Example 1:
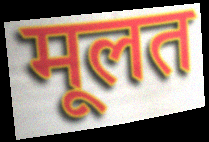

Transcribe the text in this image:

मूलत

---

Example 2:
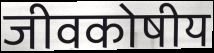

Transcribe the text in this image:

जीवकोषीय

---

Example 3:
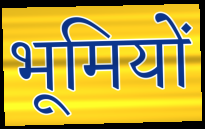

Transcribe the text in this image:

भूमियों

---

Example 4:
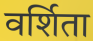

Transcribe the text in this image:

वर्शिता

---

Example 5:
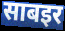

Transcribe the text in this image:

साबइर